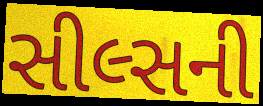
સીલ્સની